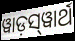
ୱାଡ଼ସ୍‌ୱାର୍ଥ